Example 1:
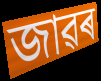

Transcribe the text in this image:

জাৱৰ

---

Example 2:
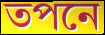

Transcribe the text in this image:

তপনে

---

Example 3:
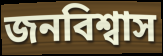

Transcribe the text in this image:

জনবিশ্বাস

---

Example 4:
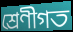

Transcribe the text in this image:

শ্ৰেণীগত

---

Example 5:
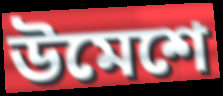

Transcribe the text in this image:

উমেশে